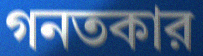
গনতকার